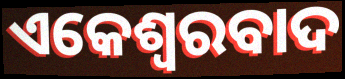
ଏକେଶ୍ୱରବାଦ